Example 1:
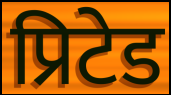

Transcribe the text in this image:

प्रिटेड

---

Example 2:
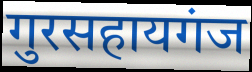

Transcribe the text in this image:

गुरसहायगंज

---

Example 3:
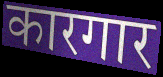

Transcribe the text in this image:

कारगार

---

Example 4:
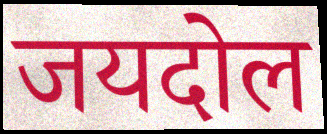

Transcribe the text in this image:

जयदोल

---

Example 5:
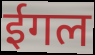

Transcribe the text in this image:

ईगल